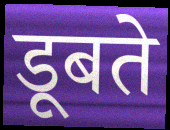
डूबते